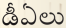
డీఏలు